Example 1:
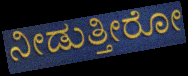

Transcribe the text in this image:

ನೀಡುತ್ತೀರೋ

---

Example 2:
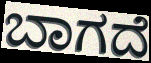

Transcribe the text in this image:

ಬಾಗದೆ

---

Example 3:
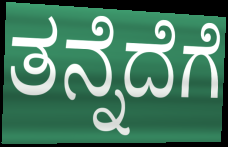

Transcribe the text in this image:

ತನ್ನೆದೆಗೆ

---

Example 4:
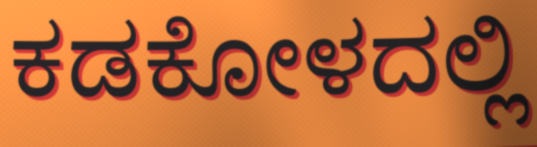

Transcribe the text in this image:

ಕಡಕೋಳದಲ್ಲಿ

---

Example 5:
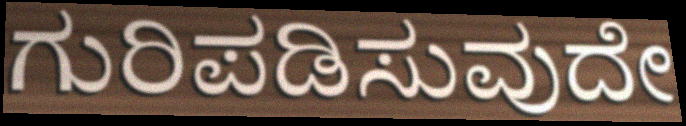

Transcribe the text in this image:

ಗುರಿಪಡಿಸುವುದೇ